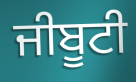
ਜੀਬੂਟੀ